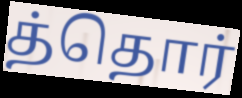
த்தொர்